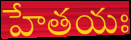
హేతయః